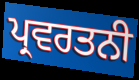
ਪ੍ਰਵਰਤਨੀ